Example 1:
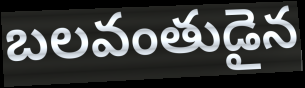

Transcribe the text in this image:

బలవంతుడైన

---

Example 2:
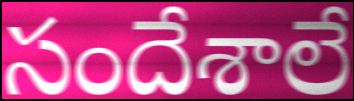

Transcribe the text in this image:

సందేశాలే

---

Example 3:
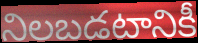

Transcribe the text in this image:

నిలబడటానికీ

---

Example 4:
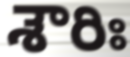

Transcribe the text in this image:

శౌరిః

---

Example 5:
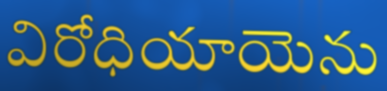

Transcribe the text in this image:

విరోధియాయెను